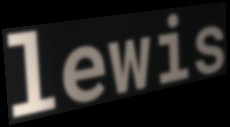
lewis